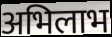
अभिलाभ